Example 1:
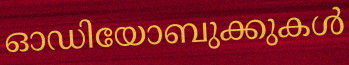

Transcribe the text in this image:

ഓഡിയോബുക്കുകൾ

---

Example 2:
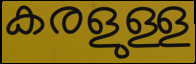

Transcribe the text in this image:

കരളുള്ള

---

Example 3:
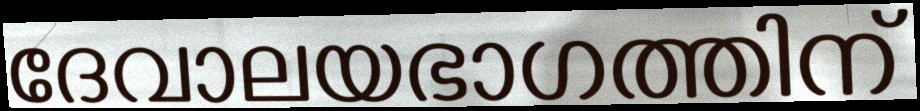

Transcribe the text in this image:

ദേവാലയഭാഗത്തിന്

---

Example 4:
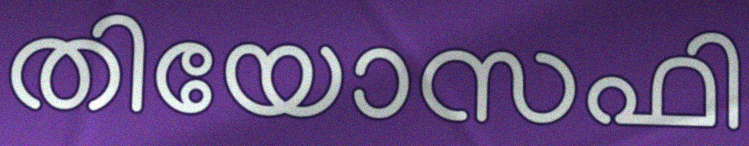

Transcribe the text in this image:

തിയോസഫി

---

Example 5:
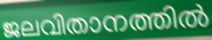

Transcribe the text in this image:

ജലവിതാനത്തിൽ